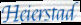
Heierstad